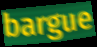
bargue